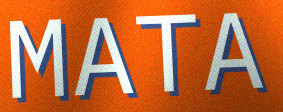
MATA